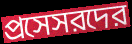
প্রসেসরদের